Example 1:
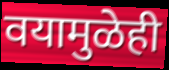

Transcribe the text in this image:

वयामुळेही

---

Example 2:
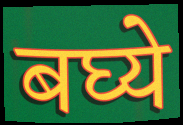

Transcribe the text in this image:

बघ्ये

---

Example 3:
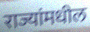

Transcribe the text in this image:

राज्यांमधील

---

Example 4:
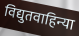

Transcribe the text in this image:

विद्युतवाहिन्या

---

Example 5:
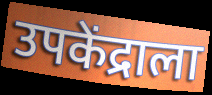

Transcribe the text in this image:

उपकेंद्राला